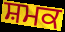
ਸ਼ਮਕ